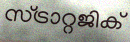
സ്ട്രാറ്റജിക്